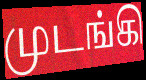
முடங்கி